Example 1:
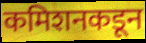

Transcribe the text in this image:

कमिशनकडून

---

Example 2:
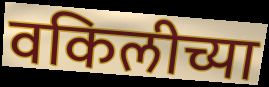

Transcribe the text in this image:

वकिलीच्या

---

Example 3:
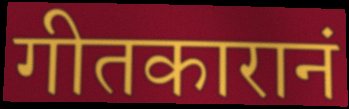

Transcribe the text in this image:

गीतकारानं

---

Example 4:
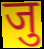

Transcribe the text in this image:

जु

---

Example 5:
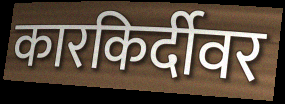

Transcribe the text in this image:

कारकिर्दीवर